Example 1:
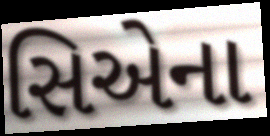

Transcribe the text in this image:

સિએના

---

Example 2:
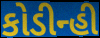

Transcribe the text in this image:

કોડીન્હી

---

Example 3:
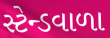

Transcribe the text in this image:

સ્ટેન્ડવાળા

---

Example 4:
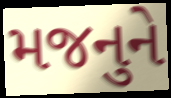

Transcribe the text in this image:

મજનુને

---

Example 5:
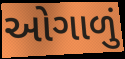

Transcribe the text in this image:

ઓગાળું